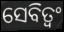
ସେବିତ୍ୱଂ